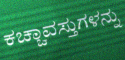
ಕಚ್ಚಾವಸ್ತುಗಳನ್ನು